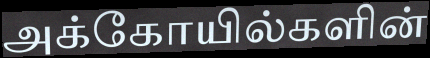
அக்கோயில்களின்